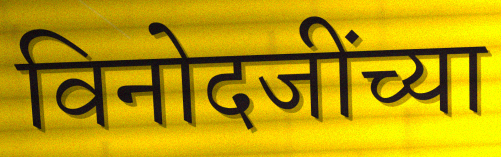
विनोदजींच्या